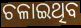
ଚଳାଇଥିବ